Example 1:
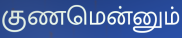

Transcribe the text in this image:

குணமென்னும்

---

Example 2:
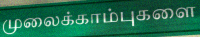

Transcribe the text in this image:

முலைக்காம்புகளை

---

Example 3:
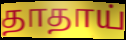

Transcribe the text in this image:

தாதாய்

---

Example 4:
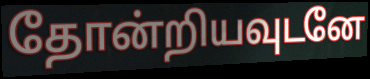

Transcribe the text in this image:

தோன்றியவுடனே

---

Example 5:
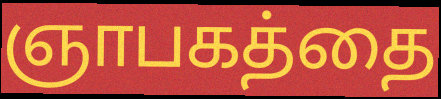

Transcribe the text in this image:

ஞாபகத்தை